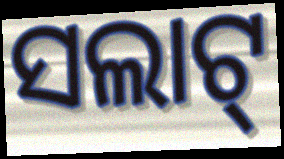
ସଲାଟ୍